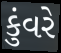
કુંવરે